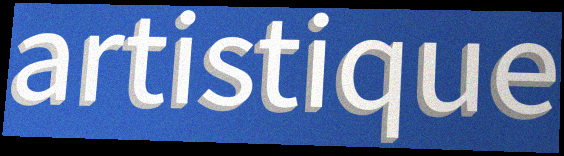
artistique